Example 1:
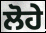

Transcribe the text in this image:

ਲੋਹੇ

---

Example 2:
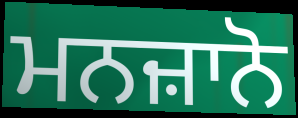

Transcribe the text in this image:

ਮਨਜ਼ਾਨੋ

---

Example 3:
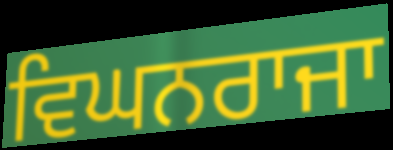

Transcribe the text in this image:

ਵਿਘਨਰਾਜਾ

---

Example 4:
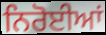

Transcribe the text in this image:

ਨਿਰੋਈਆਂ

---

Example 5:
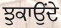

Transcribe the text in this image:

ਝੁਕਾਉੰਦੇ